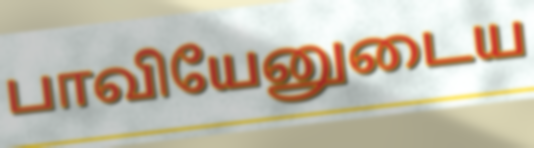
பாவியேனுடைய